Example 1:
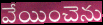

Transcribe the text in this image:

వేయించెను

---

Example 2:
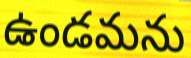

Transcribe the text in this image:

ఉండమను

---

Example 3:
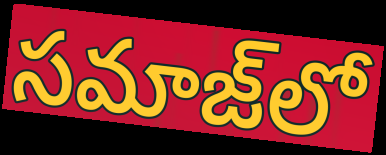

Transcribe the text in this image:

సమాజ్‌లో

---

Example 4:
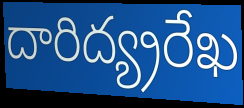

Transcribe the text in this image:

దారిద్య్రరేఖ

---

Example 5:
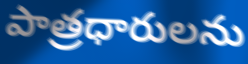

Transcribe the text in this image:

పాత్రధారులను